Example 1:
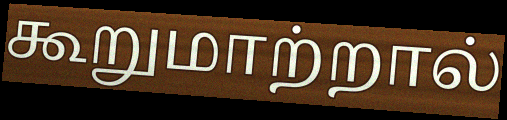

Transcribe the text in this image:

கூறுமாற்றால்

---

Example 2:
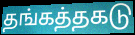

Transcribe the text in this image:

தங்கத்தகடு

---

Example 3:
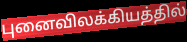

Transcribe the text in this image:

புனைவிலக்கியத்தில்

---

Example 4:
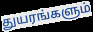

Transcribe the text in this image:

துயரங்களும்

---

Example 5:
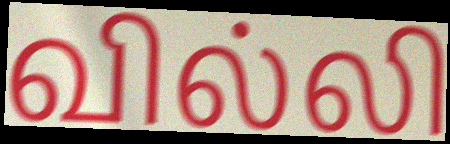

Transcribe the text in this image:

வில்லி